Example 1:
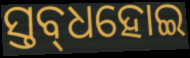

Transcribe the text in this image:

ସ୍ତବ୍‌ଧହୋଇ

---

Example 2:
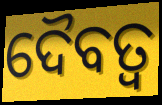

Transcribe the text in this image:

ଦୈବତ୍ଵ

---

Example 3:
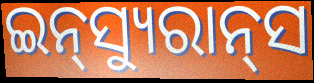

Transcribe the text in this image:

ଇନ୍‌ସ୍ୟୁରାନ୍‌ସ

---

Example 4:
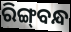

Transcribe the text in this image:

ରିଙ୍ଗ୍‌ବନ୍ଧ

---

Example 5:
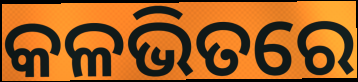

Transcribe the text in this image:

କଳଭିତରେ